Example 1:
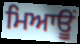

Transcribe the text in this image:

ਮਿਆਊਂ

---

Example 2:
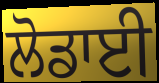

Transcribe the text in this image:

ਲੋਡਾਈ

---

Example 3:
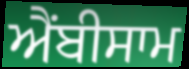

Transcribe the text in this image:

ਐਂਬੀਸਾਮ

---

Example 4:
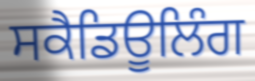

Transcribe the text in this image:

ਸਕੈਡਿਊਲਿੰਗ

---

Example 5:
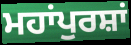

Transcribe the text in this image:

ਮਹਾਂਪੁਰਸ਼ਾਂ